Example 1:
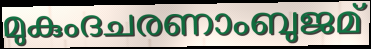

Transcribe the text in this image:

മുകുംദചരണാംബുജമ്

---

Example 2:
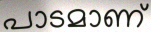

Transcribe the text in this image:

പാടമാണ്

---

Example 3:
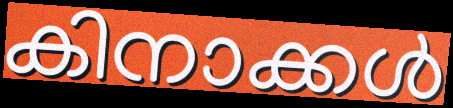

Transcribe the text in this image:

കിനാക്കൾ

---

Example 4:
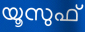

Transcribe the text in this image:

യൂസുഫ്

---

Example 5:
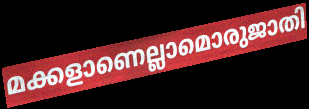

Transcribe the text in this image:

മക്കളാണെല്ലാമൊരുജാതി